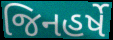
જિનહર્ષે